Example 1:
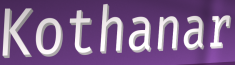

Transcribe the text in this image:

Kothanar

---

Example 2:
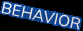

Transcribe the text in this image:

BEHAVIOR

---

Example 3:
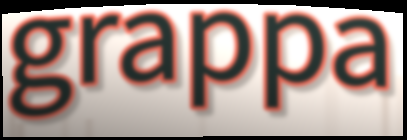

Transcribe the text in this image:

grappa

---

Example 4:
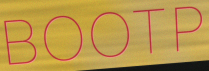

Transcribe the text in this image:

BOOTP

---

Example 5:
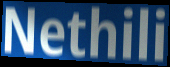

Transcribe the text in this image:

Nethili